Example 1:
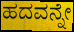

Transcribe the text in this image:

ಹದವನ್ನೇ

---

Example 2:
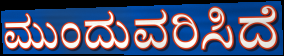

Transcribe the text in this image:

ಮುಂದುವರಿಸಿದೆ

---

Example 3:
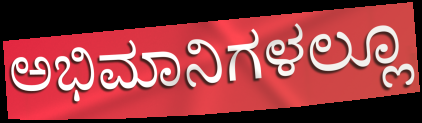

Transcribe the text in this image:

ಅಭಿಮಾನಿಗಳಲ್ಲೂ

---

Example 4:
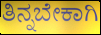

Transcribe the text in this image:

ತಿನ್ನಬೇಕಾಗಿ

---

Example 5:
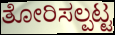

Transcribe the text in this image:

ತೋರಿಸಲ್ಪಟ್ಟ